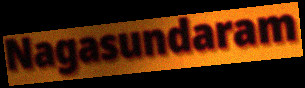
Nagasundaram